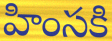
హింసకి